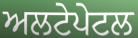
ਅਲਟੇਪੇਟਲ